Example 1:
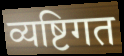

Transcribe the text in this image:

व्यष्टिगत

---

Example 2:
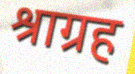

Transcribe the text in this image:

श्राग्रह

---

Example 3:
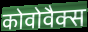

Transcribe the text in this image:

कोवोवैक्स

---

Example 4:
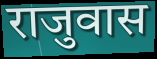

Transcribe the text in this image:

राजुवास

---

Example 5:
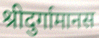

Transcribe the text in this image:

श्रीदुर्गामानस